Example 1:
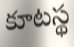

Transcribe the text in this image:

కూటస్థ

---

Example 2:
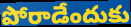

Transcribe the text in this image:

పోరాడేందుకు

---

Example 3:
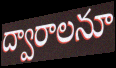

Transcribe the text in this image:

ద్వారాలనూ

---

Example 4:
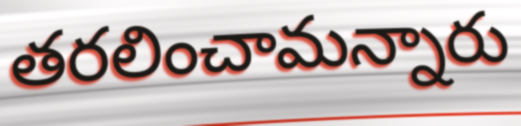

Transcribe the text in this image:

తరలించామన్నారు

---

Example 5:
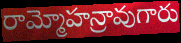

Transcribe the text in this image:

రామ్మోహన్రావుగారు